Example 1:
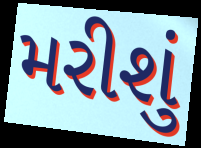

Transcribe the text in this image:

મરીશું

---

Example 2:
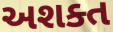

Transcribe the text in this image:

અશક્ત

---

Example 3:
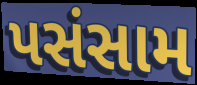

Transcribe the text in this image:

પસંસામ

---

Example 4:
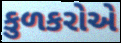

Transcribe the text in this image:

કુળકરોએ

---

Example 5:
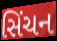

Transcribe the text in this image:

સિંચન